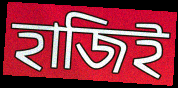
হাজিই